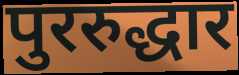
पुररुद्धार